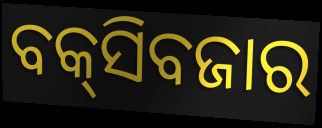
ବକ୍‍ସିବଜାର